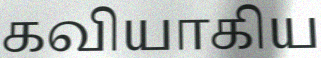
கவியாகிய